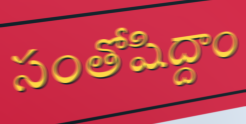
సంతోషిద్దాం